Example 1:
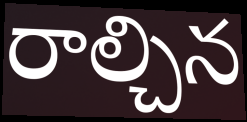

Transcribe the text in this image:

రాల్చిన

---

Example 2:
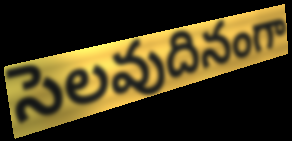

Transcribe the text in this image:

సెలవుదినంగా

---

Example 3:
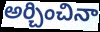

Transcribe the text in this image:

అర్చించినా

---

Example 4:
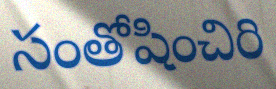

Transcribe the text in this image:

సంతోషించిరి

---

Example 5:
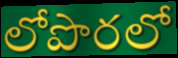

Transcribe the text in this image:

లోపొరలో